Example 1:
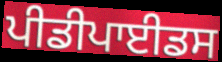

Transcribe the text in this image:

ਪੀਡੀਪਾਈਡਸ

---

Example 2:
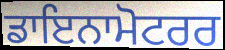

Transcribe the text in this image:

ਡਾਇਨਾਮੋਟਰਰ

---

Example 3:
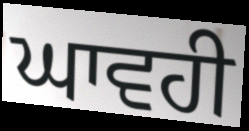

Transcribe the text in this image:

ਘਾਵਹੀ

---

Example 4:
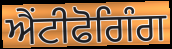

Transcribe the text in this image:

ਐਂਟੀਫੋਗਿੰਗ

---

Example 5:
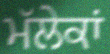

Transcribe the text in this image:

ਮੱਲੇਕਾਂ